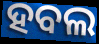
ହବଲ